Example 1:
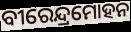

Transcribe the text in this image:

ବୀରେନ୍ଦ୍ରମୋହନ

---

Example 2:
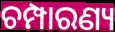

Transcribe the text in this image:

ଚମ୍ପାରଣ୍ୟ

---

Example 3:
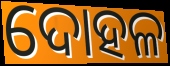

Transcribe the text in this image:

ଦୋହଳ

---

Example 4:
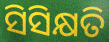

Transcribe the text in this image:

ସିସିକ୍ଷତି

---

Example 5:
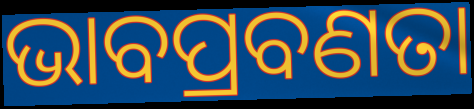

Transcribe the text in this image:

ଭାବପ୍ରବଣତା